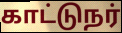
காட்டுநர்